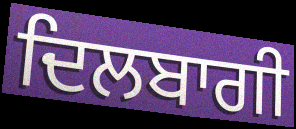
ਦਿਲਬਾਗੀ